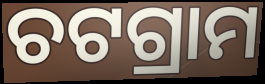
ଚଟଗ୍ରାମ